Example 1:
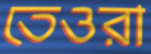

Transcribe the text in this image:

তেওরা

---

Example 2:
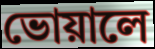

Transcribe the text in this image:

ভোয়ালে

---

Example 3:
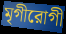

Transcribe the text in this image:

মৃগীরোগী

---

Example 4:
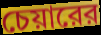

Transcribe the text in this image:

চেয়ারের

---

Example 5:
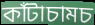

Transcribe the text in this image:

কাঁটাচামচ